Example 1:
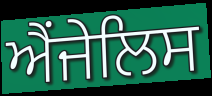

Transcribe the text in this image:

ਐਂਜੇਲਿਸ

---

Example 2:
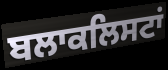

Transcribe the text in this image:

ਬਲਾਕਲਿਸਟਾਂ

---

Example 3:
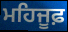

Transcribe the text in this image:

ਮਹਿਜੂਫ਼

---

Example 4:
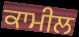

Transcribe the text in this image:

ਕਾਮੀਲ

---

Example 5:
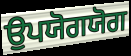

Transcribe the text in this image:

ਉਪਯੋਗਯੋਗ